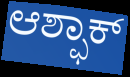
ಆಶ್ಫಾಕ್